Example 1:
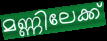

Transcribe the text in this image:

മണ്ണിലേക്ക്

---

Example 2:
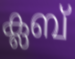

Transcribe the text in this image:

ക്ലബ്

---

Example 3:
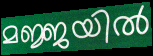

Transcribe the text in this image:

മജ്ജയിൽ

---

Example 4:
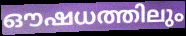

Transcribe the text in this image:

ഔഷധത്തിലും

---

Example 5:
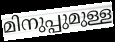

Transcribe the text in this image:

മിനുപ്പുമുള്ള